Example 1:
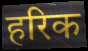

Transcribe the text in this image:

हरिक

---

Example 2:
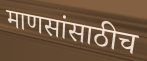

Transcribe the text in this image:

माणसांसाठीच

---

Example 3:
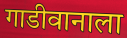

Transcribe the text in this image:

गाडीवानाला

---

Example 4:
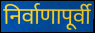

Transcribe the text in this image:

निर्वाणापूर्वी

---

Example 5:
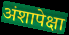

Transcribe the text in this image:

अंशापेक्षा